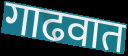
गाढवात